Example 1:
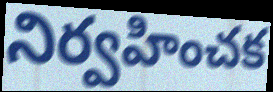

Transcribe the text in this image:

నిర్వహించక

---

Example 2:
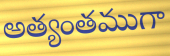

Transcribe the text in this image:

అత్యంతముగా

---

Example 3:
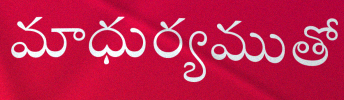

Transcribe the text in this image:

మాధుర్యముతో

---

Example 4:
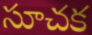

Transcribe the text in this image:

సూచక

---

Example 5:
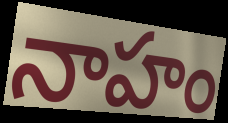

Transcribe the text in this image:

నాహం